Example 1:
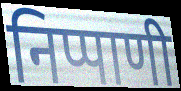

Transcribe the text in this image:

निप्पाणी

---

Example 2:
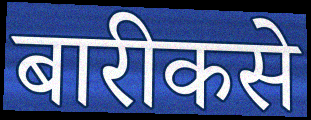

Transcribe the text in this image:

बारीकसे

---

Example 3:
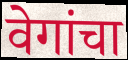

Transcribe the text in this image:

वेगांचा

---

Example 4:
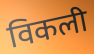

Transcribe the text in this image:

विकली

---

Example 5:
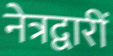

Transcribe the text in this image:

नेत्रद्वारीं